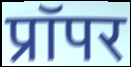
प्रॉपर